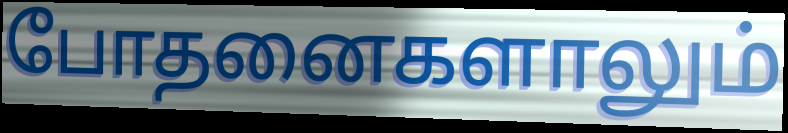
போதனைகளாலும்